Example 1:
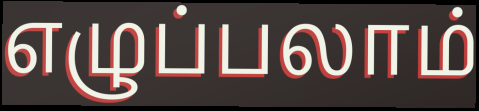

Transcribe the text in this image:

எழுப்பலாம்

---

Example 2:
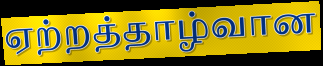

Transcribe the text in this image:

ஏற்றத்தாழ்வான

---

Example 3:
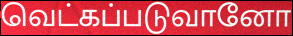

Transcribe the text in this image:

வெட்கப்படுவானோ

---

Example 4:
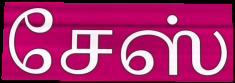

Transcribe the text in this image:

சேஸ்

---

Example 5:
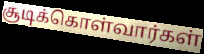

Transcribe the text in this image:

சூடிக்கொள்வார்கள்